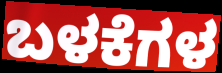
ಬಳಕೆಗಳ